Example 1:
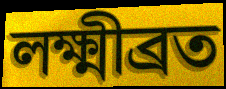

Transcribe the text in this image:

লক্ষ্মীব্রত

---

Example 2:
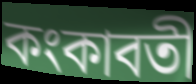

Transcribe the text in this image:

কংকাবতী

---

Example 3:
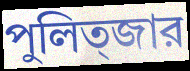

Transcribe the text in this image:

পুলিত্জার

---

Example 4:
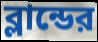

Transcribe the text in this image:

ব্লান্ডের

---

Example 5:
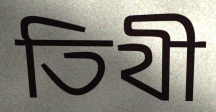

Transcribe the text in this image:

তিথী